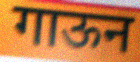
गाऊन